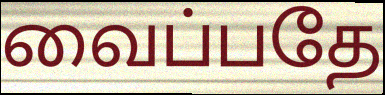
வைப்பதே